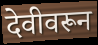
देवीवरून